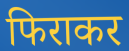
फिराकर